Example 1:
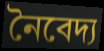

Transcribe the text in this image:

নৈবেদ্য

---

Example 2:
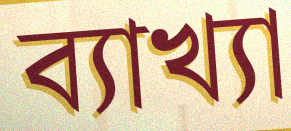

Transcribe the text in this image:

ব্যাখ্যা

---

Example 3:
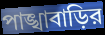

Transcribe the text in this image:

পাঙ্খাবাড়ির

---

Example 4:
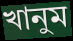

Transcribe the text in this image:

খানুম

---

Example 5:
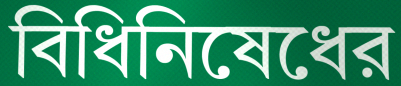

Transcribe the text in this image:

বিধিনিষেধের